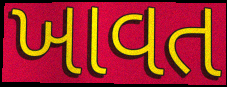
ખાવત